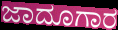
ಜಾದೂಗಾರ